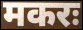
मकरः